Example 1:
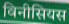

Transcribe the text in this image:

विनीसियस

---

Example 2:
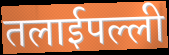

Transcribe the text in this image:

तलाईपल्ली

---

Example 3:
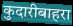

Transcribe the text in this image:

कुदारीबाहरा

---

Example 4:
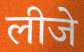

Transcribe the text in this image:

लीजे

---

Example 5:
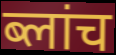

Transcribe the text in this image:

ब्लांच